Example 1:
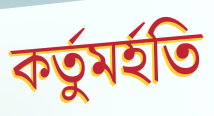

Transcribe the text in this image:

কর্তুমর্হতি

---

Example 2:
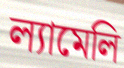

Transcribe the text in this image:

ল্যামেলি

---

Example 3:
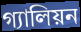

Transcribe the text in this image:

গ্যালিয়ন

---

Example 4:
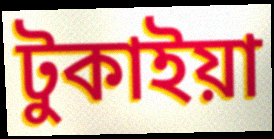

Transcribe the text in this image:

টুকাইয়া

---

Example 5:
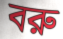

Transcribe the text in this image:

বরু